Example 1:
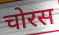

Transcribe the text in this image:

चोरस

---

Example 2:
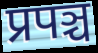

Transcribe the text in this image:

प्रपञ्च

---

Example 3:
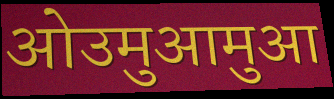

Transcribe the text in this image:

ओउमुआमुआ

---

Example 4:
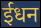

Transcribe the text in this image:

ईधन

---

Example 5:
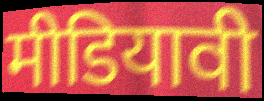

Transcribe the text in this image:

मीडियावी